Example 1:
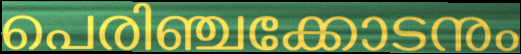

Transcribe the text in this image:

പെരിഞ്ചക്കോടനും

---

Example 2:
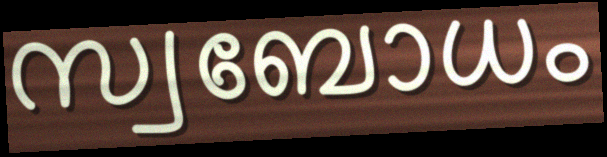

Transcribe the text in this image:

സ്വബോധം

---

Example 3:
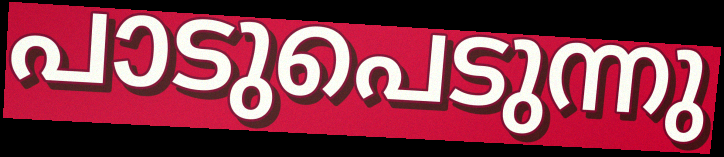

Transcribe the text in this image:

പാടുപെടുന്നു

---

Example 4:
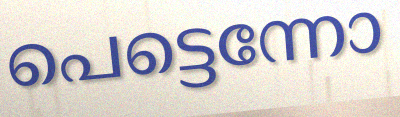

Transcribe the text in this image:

പെട്ടെന്നോ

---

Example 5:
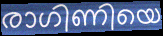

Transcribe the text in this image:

രാഗിണിയെ